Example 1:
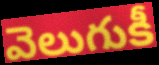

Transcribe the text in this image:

వెలుగుకీ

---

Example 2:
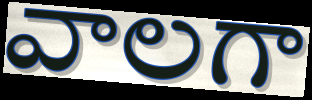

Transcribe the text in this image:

వాలగా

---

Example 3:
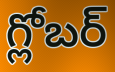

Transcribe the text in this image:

గ్లోబర్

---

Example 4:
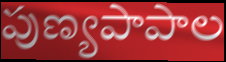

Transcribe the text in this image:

పుణ్యపాపాల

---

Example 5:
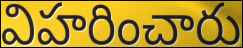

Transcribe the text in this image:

విహరించారు